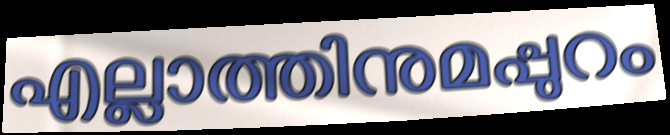
എല്ലാത്തിനുമപ്പുറം